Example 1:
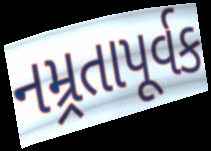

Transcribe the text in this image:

નમ્ર્રતાપૂર્વક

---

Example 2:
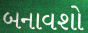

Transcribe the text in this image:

બનાવશો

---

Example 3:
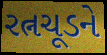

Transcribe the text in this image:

રત્નચૂડને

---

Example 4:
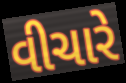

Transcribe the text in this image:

વીચારે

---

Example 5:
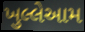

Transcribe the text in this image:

ખુલ્લેઆમ